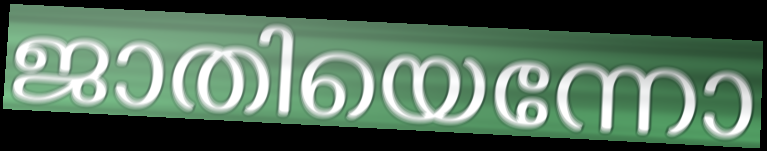
ജാതിയെന്നോ